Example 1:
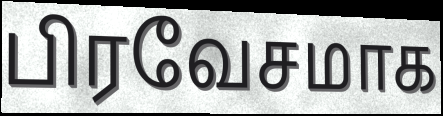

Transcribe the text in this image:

பிரவேசமாக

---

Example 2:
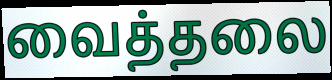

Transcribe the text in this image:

வைத்தலை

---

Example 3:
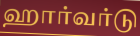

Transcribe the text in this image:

ஹார்வர்டு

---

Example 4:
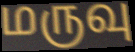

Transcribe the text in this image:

மருவு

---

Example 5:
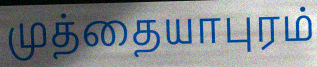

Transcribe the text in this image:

முத்தையாபுரம்